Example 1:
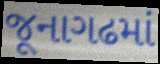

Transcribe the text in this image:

જૂનાગઢમાં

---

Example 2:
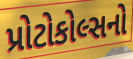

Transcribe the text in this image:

પ્રોટોકોલ્સનો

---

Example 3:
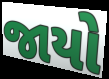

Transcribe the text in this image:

જાયો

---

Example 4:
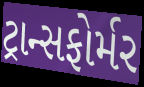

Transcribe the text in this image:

ટ્રાન્સફોર્મર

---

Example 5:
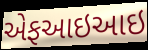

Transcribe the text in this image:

એફઆઇઆઇ